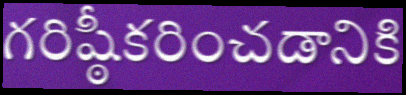
గరిష్ఠీకరించడానికి